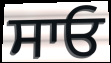
ਸਾਓ